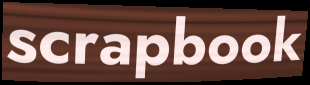
scrapbook